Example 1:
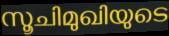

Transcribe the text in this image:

സൂചിമുഖിയുടെ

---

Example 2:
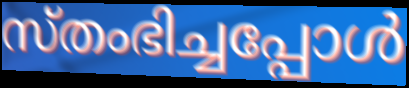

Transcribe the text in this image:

സ്തംഭിച്ചപ്പോൾ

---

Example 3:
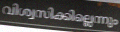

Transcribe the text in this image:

വിശ്വസിക്കില്ലെന്നും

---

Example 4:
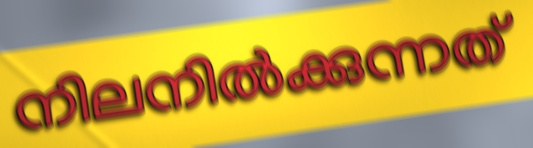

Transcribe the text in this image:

നിലനിൽക്കുന്നത്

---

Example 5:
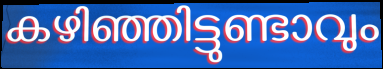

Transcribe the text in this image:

കഴിഞ്ഞിട്ടുണ്ടാവും